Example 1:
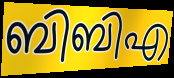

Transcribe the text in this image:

ബിബിഎ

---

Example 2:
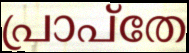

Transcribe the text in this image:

പ്രാപ്തേ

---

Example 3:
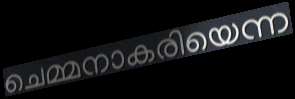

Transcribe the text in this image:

ചെമ്മനാകരിയെന്ന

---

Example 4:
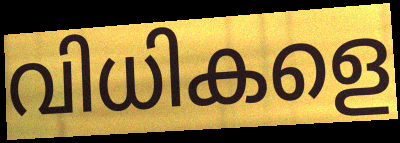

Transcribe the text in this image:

വിധികളെ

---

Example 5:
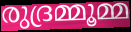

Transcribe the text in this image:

രുദ്രമ്മൂമ്മ